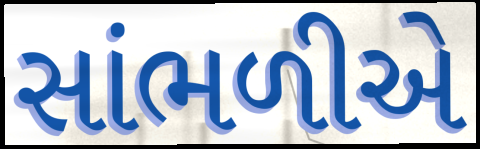
સાંભળીએ